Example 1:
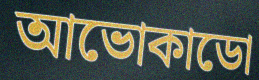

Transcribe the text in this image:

আভোকাডো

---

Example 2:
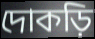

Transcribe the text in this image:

দোকড়ি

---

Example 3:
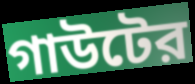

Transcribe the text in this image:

গাউটের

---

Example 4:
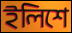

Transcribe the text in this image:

ইলিশে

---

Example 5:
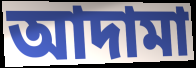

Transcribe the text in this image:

আদামা